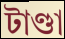
টাণ্ডা